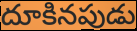
దూకినపుడు